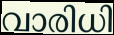
വാരിധി